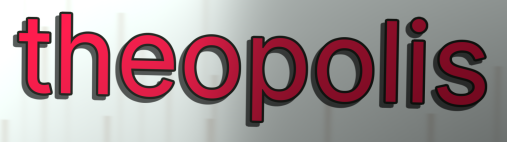
theopolis